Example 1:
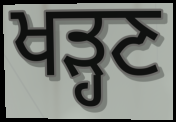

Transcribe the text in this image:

ਖੜ੍ਹਣ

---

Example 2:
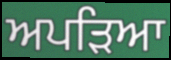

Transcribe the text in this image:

ਅਪੜਿਆ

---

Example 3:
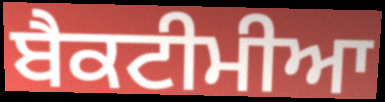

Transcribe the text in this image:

ਬੈਕਟੀਮੀਆ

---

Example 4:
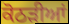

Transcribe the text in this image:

ਕੋਠੜੀਆਂ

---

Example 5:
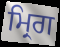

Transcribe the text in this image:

ਮ੍ਰਿਗ